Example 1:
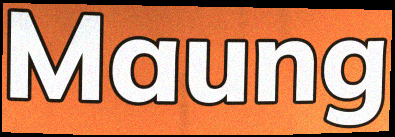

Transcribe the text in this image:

Maung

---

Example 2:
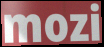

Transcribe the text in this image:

mozi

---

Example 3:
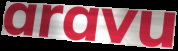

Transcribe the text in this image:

aravu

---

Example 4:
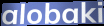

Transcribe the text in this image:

alobaki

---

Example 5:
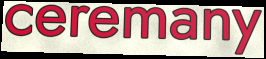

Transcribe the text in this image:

ceremany